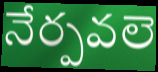
నేర్పవలె